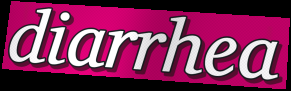
diarrhea